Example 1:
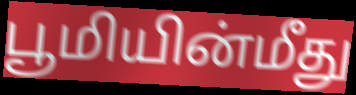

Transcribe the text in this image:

பூமியின்மீது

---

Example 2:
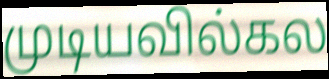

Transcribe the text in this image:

முடியவில்கல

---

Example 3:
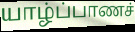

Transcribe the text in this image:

யாழ்ப்பாணச்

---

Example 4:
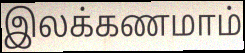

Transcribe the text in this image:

இலக்கணமாம்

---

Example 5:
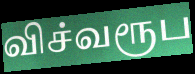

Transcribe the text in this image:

விச்வரூப